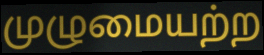
முழுமையற்ற